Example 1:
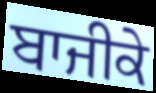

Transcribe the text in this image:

ਬਾਜੀਕੇ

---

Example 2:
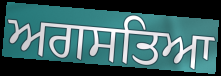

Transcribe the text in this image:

ਅਗਸਤਿਆ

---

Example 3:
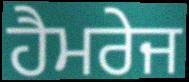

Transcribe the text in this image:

ਹੈਮਰੇਜ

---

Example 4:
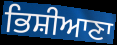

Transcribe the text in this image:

ਭਿਸ਼ੀਆਣਾ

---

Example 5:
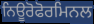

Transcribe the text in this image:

ਨਿਊਰੋਫੋਰਮਿਨਲ